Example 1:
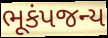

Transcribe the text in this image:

ભૂકંપજન્ય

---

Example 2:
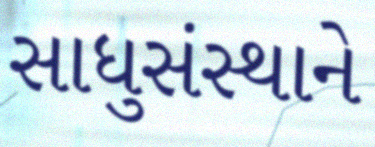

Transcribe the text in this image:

સાધુસંસ્થાને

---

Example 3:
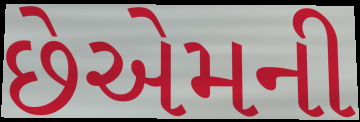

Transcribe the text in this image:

છેએમની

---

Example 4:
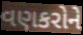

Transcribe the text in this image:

વણકરોને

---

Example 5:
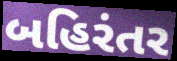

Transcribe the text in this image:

બહિરંતર